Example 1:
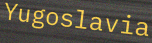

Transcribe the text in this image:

Yugoslavia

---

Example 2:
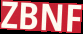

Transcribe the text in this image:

ZBNF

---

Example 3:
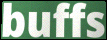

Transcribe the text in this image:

buffs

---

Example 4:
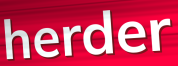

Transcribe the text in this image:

herder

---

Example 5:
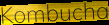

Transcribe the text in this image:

Kombucha